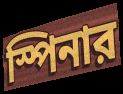
স্পিনার